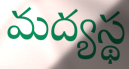
మద్యస్థ